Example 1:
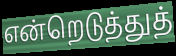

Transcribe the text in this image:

என்றெடுத்துத்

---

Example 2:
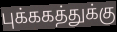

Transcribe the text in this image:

புக்ககத்துக்கு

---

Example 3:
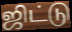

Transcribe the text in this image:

ஜிட்டு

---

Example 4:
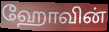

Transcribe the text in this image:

ஹோவின்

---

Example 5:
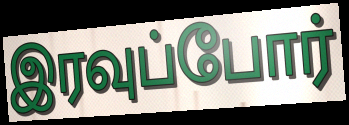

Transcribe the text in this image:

இரவுப்போர்